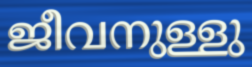
ജീവനുള്ളു